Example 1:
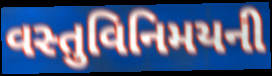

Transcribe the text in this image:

વસ્તુવિનિમયની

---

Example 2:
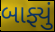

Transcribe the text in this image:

બાફ્યું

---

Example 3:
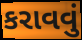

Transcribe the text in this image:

કરાવવું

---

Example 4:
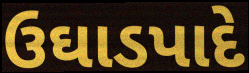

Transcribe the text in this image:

ઉઘાડપાદે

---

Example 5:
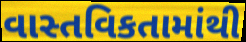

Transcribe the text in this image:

વાસ્તવિકતામાંથી